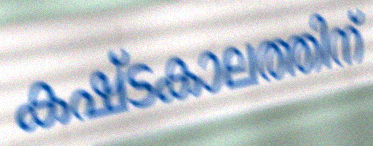
കഷ്ടകാലത്തിന്